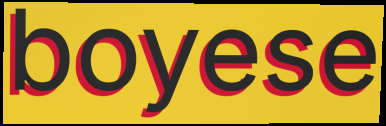
boyese